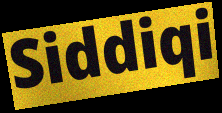
Siddiqi